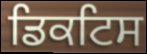
ਡਿਕਟਿਸ